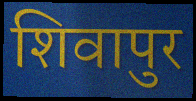
शिवापुर